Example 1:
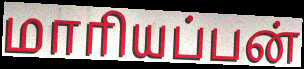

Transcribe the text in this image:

மாரியப்பன்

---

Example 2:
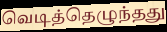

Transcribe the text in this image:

வெடித்தெழுந்தது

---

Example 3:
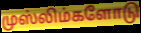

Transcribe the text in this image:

முஸ்லிம்களோடு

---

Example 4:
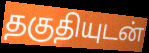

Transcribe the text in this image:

தகுதியுடன்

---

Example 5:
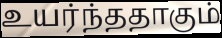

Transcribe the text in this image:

உயர்ந்ததாகும்